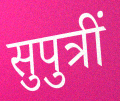
सुपुत्रीं